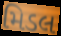
મિડલ